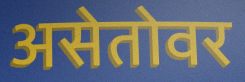
असेतोवर